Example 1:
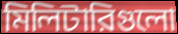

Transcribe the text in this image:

মিলিটারিগুলো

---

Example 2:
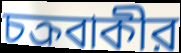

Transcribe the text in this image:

চক্রবাকীর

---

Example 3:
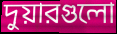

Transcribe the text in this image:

দুয়ারগুলো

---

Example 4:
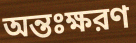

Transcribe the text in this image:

অন্তঃক্ষরণ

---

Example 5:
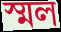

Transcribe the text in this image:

স্মল